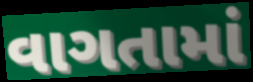
વાગતામાં